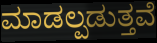
ಮಾಡಲ್ಪಡುತ್ತವೆ